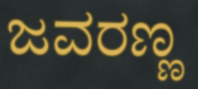
ಜವರಣ್ಣ